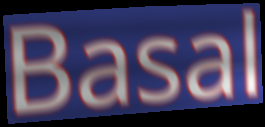
Basal